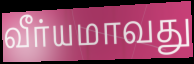
வீர்யமாவது